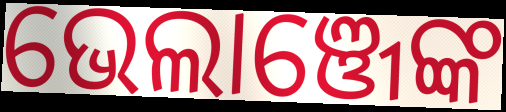
ଭେଲାଞ୍ଜେଙ୍କ